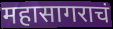
महासागराचं